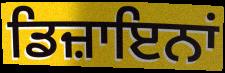
ਡਿਜ਼ਾਇਨਾਂ